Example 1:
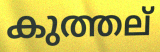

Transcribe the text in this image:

കുത്തല്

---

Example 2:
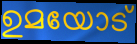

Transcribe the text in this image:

ഉമയോട്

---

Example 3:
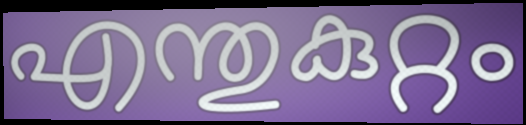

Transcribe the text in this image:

എന്തുകുറ്റം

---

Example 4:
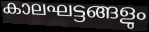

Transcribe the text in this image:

കാലഘട്ടങ്ങളും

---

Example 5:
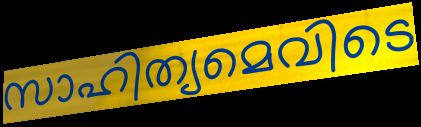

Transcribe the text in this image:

സാഹിത്യമെവിടെ